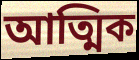
আত্মিক